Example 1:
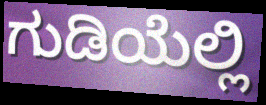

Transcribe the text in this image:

ಗುಡಿಯೆಲ್ಲಿ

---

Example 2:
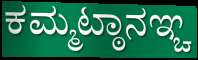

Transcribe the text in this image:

ಕಮ್ಮಟ್ಠಾನಞ್ಚ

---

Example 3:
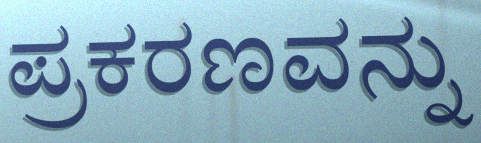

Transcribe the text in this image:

ಪ್ರಕರಣವನ್ನು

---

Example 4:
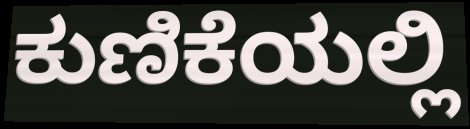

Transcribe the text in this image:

ಕುಣಿಕೆಯಲ್ಲಿ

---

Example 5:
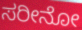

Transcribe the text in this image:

ಸರೀನೋ